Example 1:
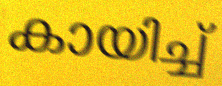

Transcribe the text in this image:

കായിച്ച്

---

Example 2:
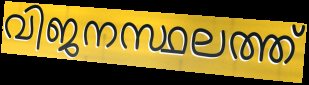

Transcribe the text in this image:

വിജനസ്ഥലത്ത്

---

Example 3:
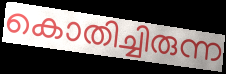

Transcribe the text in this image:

കൊതിച്ചിരുന്ന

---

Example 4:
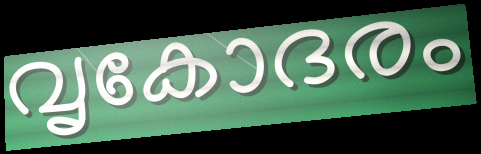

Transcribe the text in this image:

വൃകോദരം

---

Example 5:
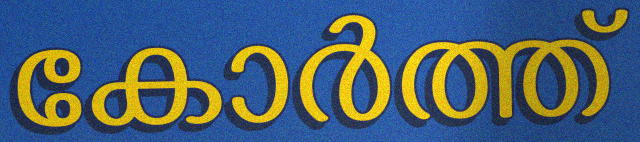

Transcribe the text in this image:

കോർത്ത്